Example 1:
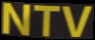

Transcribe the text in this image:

NTV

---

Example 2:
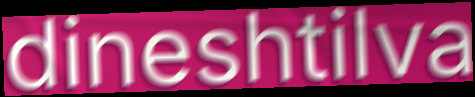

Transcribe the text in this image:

dineshtilva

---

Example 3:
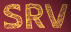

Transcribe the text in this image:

SRV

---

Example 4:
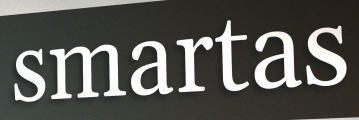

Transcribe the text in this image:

smartas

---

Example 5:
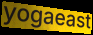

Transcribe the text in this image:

yogaeast